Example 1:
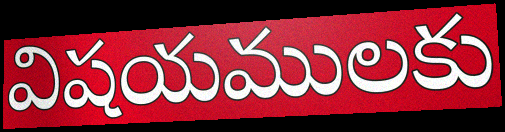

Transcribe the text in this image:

విషయములకు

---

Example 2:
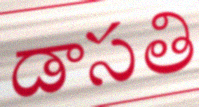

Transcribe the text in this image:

డాసతి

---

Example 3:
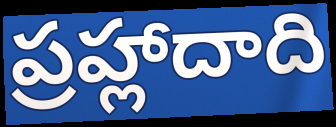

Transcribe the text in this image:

ప్రహ్లాదాది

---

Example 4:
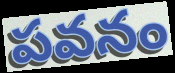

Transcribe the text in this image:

పవనం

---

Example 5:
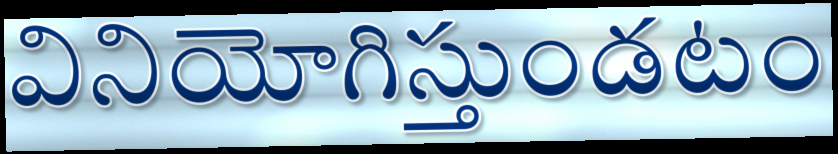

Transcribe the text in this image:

వినియోగిస్తుండటం